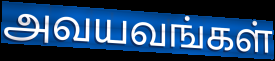
அவயவங்கள்